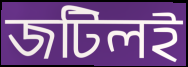
জটিলই